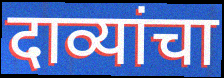
दाव्यांचा